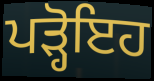
ਪੜ੍ਹੋਇਹ